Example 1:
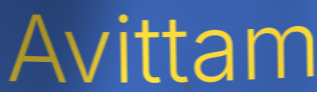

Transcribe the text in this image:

Avittam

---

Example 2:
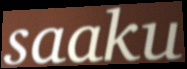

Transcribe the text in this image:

saaku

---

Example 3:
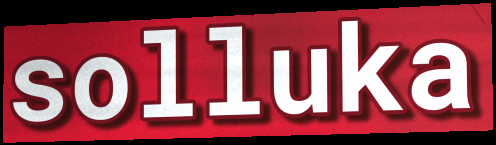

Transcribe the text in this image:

solluka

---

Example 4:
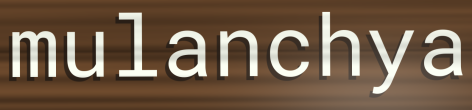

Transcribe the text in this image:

mulanchya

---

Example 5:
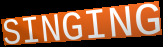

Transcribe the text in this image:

SINGING